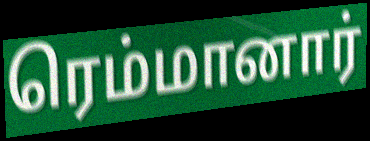
ரெம்மானார்